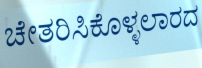
ಚೇತರಿಸಿಕೊಳ್ಳಲಾರದ